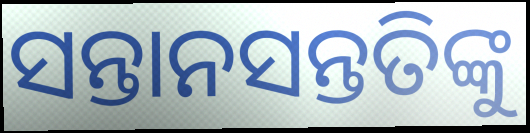
ସନ୍ତାନସନ୍ତତିଙ୍କୁ